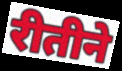
रीतीने